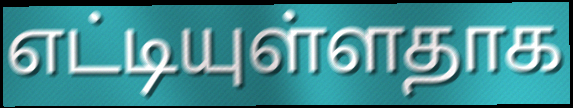
எட்டியுள்ளதாக